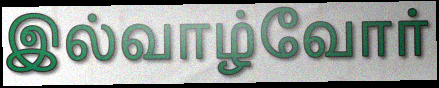
இல்வாழ்வோர்